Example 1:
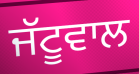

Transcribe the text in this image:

ਜੱਟੂਵਾਲ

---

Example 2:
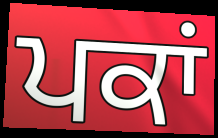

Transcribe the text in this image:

ਪਕਾਂ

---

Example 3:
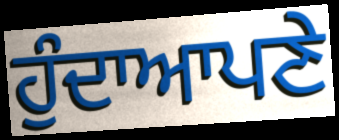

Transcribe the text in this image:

ਹੁੰਦਾਆਪਣੇ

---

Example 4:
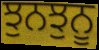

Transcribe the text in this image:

ਝੁਨਝੁਨੂ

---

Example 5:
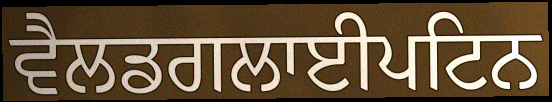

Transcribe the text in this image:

ਵੈਲਡਗਲਾਈਪਟਿਨ